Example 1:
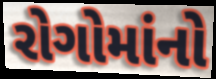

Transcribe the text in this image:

રોગોમાંનો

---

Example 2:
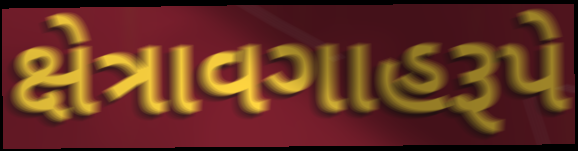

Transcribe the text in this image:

ક્ષેત્રાવગાહરૂપે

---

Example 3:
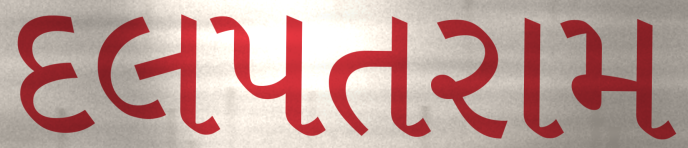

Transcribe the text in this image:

દલપતરામ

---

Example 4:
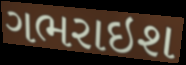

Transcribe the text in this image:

ગભરાઇશ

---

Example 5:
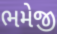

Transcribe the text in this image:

ભમેજી